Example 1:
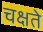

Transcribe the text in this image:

चक्षते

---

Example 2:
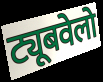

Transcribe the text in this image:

ट्यूबवेलो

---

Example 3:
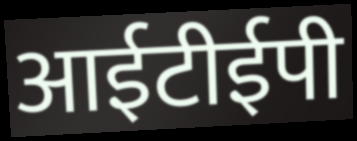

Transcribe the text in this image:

आईटीईपी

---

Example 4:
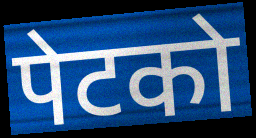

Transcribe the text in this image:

पेटको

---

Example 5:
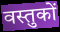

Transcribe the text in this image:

वस्तुकों